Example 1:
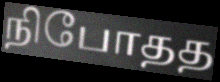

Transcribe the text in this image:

நிபோதத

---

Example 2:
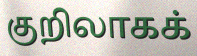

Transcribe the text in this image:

குறிலாகக்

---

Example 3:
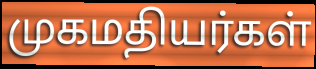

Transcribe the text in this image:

முகமதியர்கள்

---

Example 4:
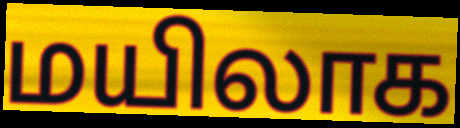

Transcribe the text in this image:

மயிலாக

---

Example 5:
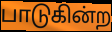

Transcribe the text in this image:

பாடுகின்ற